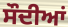
ਸੌਦੀਆਂ